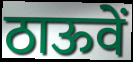
ठाऊवें